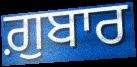
ਗ਼ੁਬਾਰ